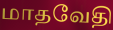
மாதவேதி